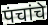
पंचांचे